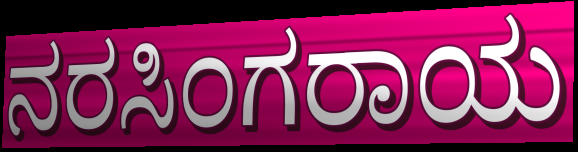
ನರಸಿಂಗರಾಯ